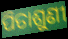
ପିତାଶୁଣୀ